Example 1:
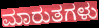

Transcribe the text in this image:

ಮಾರುತಗಳು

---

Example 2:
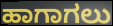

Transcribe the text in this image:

ಹಾಗಾಗಲು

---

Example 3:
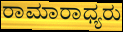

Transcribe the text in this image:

ರಾಮಾರಾಧ್ಯರು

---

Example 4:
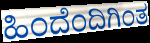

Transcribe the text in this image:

ಹಿಂದೆಂದಿಗಿಂತ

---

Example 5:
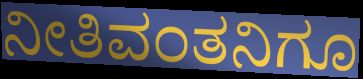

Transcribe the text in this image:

ನೀತಿವಂತನಿಗೂ